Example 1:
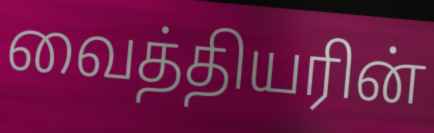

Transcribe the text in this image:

வைத்தியரின்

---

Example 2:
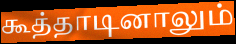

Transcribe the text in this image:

கூத்தாடினாலும்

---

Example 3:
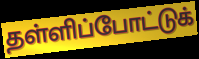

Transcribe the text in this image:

தள்ளிப்போட்டுக்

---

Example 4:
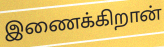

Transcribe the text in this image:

இணைக்கிறான்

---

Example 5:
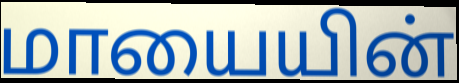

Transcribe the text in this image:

மாயையின்